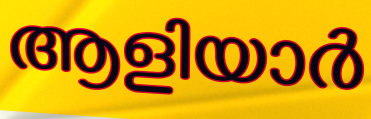
ആളിയാർ